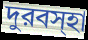
দুরবস্হা